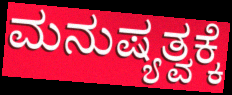
ಮನುಷ್ಯತ್ವಕ್ಕೆ